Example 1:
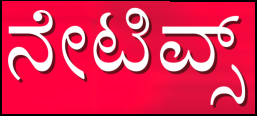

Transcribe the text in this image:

ನೇಟಿವ್ಸ್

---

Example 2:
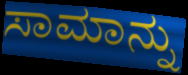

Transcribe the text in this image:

ಸಾಮಾನ್ನು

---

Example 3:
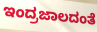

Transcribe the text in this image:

ಇಂದ್ರಜಾಲದಂತೆ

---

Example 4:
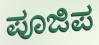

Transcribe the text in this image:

ಪೂಜಿಪ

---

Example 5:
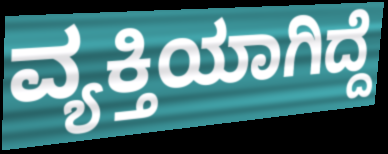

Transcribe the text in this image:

ವ್ಯಕ್ತಿಯಾಗಿದ್ದೆ